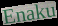
Enaku